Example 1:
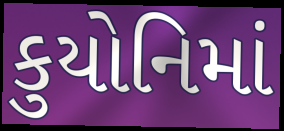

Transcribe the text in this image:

કુયોનિમાં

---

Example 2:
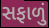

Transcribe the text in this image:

સફાળું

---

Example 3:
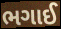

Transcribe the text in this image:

ભગાઈ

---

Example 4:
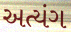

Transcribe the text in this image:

અત્યંગ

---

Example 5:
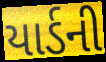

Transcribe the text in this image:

યાર્ડની